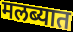
मलब्यात